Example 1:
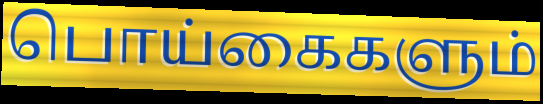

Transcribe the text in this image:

பொய்கைகளும்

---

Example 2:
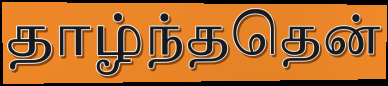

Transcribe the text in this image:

தாழ்ந்ததென்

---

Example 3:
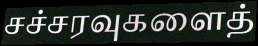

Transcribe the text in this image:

சச்சரவுகளைத்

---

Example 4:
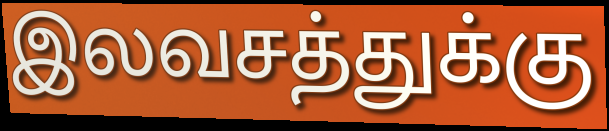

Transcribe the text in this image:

இலவசத்துக்கு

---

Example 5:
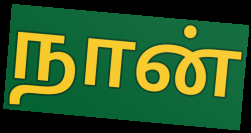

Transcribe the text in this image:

நான்